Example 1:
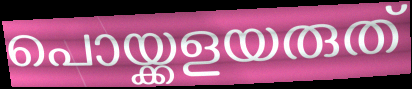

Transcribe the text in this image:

പൊയ്ക്കളയരുത്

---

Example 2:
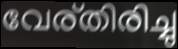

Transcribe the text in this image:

വേര്തിരിച്ചു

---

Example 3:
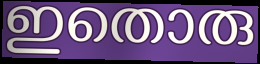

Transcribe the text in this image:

ഇതൊരു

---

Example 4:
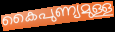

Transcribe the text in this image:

കൈപുണ്യമുള്ള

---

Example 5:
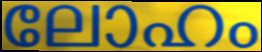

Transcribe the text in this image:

ലോഹം